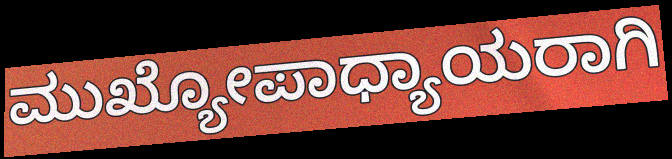
ಮುಖ್ಯೋಪಾಧ್ಯಾಯರಾಗಿ